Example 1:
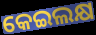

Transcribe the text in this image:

କେଇଲକ୍ଷ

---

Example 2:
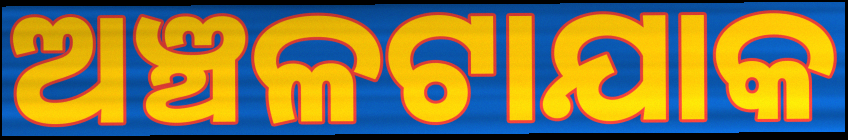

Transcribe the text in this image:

ଅଞ୍ଚଳଟାଯାକ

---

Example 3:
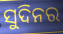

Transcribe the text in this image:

ସୁଦିନର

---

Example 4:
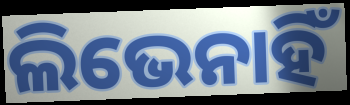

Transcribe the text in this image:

ଲିଭେନାହିଁ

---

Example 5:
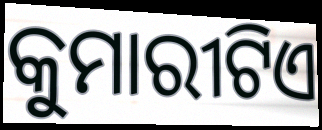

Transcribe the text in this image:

କୁମାରୀଟିଏ